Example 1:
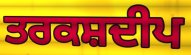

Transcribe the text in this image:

ਤਰਕਸ਼ਦੀਪ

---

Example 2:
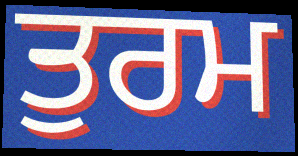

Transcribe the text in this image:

ਤੁਰਮ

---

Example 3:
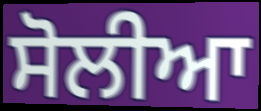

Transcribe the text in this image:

ਸੋਲੀਆ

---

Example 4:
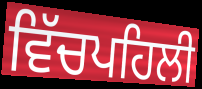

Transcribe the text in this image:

ਵਿੱਚਪਹਿਲੀ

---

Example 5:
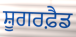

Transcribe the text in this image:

ਸ਼ੂਗਰਫ਼ੈਡ